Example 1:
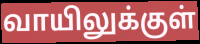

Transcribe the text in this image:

வாயிலுக்குள்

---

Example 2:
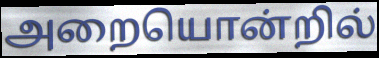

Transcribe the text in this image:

அறையொன்றில்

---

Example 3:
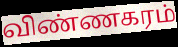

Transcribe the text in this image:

விண்ணகரம்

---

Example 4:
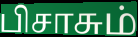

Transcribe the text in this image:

பிசாசும்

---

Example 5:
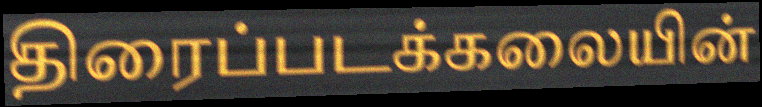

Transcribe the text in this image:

திரைப்படக்கலையின்